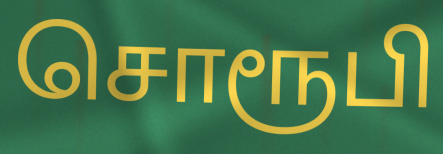
சொரூபி